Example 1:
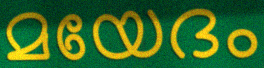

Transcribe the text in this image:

മയേദം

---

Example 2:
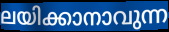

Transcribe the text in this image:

ലയിക്കാനാവുന്ന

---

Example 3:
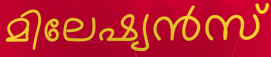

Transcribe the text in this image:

മിലേഷ്യൻസ്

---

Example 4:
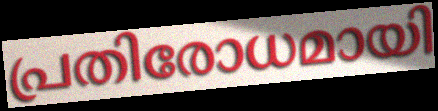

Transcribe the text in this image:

പ്രതിരോധമായി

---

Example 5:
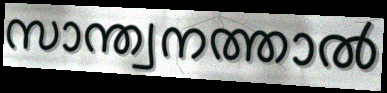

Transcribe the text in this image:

സാന്ത്വനത്താൽ